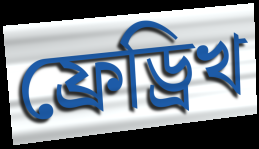
ফ্ৰেড্ৰিখ